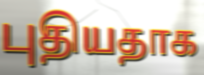
புதியதாக